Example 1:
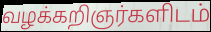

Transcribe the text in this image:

வழக்கறிஞர்களிடம்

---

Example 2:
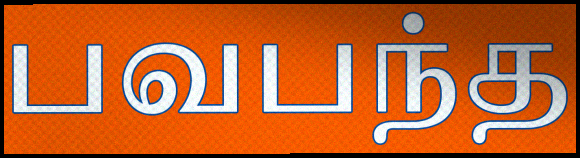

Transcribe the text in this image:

பவபந்த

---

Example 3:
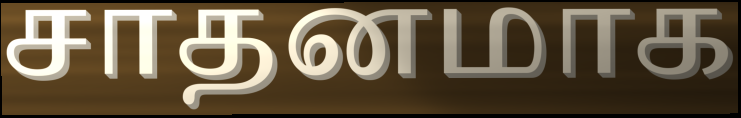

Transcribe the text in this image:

சாதனமாக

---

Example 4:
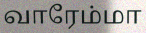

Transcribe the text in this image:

வாரேம்மா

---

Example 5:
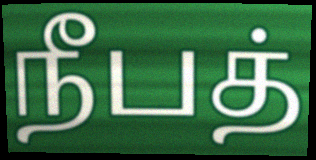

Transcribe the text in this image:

நீபத்